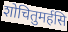
शोचितुमर्हसि